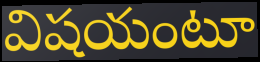
విషయంటూ